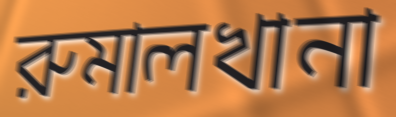
রুমালখানা